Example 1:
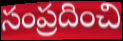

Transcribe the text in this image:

సంప్రదించి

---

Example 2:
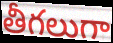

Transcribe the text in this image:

తీగలుగా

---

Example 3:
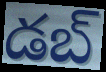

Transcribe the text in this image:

డబ్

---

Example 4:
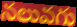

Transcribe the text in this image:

నలువగు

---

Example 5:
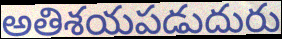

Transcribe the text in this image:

అతిశయపడుదురు